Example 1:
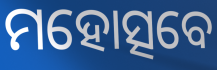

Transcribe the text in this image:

ମହୋତ୍ସବେ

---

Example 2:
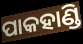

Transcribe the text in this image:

ପାକହାଣ୍ଡି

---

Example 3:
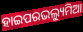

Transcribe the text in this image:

ହାଇପରଭଲ୍ୟୁମିଆ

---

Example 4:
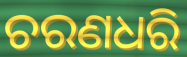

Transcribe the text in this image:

ଚରଣଧରି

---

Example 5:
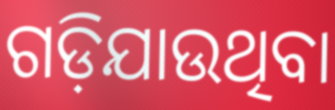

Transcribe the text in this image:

ଗଡ଼ିଯାଉଥିବା